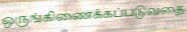
ஒருங்கிணைக்கப்படுவதை